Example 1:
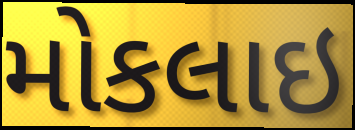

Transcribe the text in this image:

મોકલાઇ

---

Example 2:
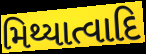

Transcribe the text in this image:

મિથ્યાત્વાદિ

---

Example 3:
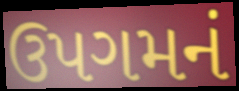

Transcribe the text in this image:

ઉપગમનં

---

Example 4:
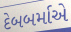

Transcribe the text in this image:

દેબબર્માએ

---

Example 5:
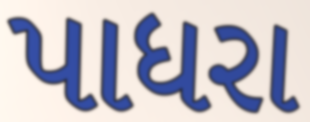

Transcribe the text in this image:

પાધરા